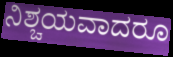
ನಿಶ್ಚಯವಾದರೂ